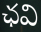
ఛవి